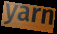
yarn